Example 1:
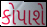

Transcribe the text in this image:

કોપાશે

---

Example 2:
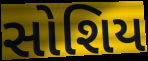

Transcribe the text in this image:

સોશિય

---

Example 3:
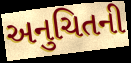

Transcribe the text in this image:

અનુચિતની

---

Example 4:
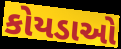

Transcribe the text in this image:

કોયડાઓ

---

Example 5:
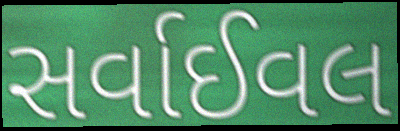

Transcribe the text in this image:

સર્વાઈવલ